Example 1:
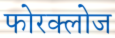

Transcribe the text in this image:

फोरक्लोज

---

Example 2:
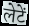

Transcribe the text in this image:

लेटें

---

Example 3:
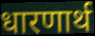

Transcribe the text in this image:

धारणार्थ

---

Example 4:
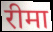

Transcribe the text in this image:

रीमा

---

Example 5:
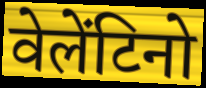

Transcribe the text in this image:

वेलेंटिनो